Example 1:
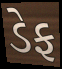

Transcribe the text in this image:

ડેફ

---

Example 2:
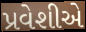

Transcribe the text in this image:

પ્રવેશીએ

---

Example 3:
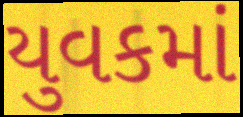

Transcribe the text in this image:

યુવકમાં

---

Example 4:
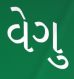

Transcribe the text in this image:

વેગુ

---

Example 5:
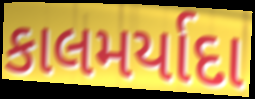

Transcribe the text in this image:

કાલમર્યાદા